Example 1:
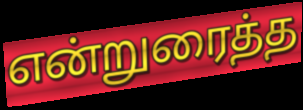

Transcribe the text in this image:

என்றுரைத்த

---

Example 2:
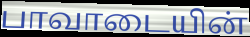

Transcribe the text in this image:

பாவாடையின்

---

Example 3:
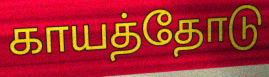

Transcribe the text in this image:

காயத்தோடு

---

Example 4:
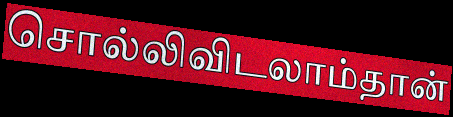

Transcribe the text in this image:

சொல்லிவிடலாம்தான்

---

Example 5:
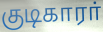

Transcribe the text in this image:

குடிகாரர்